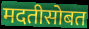
मदतीसोबत